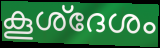
കൂശ്ദേശം